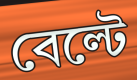
বেল্টে